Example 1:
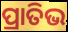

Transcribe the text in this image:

ପ୍ରାତିଭ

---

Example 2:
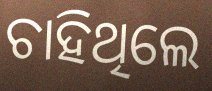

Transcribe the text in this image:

ଚାହିଥିଲେ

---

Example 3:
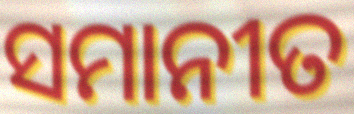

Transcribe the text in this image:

ସମାନୀତ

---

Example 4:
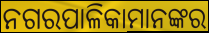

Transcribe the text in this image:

ନଗରପାଳିକାମାନଙ୍କର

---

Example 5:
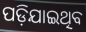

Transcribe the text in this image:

ପଡ଼ିଯାଇଥିବ